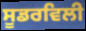
ਸੂਡਰਵਿਲੀ